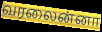
வரலைன்னா